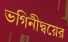
ভগিনীদ্বয়ের